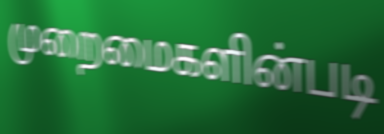
முறைமைகளின்படி